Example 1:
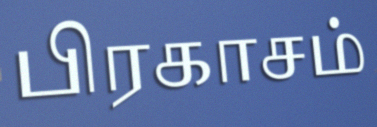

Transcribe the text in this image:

பிரகாசம்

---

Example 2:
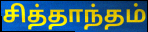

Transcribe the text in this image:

சித்தாந்தம்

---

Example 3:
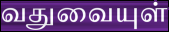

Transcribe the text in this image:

வதுவையுள்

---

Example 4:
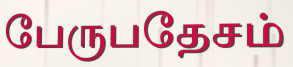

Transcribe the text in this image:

பேருபதேசம்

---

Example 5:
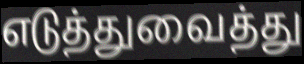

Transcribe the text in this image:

எடுத்துவைத்து